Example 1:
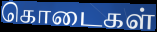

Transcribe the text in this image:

கொடைகள்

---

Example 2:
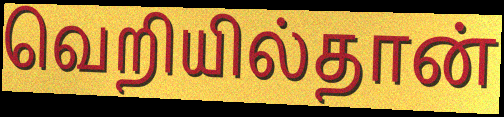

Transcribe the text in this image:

வெறியில்தான்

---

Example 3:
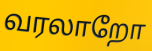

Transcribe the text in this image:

வரலாறோ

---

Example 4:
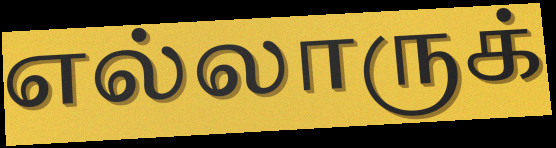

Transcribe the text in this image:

எல்லாருக்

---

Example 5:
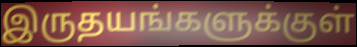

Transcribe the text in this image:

இருதயங்களுக்குள்